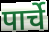
पार्चे